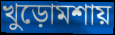
খুড়োমশায়